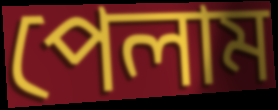
পেলাম